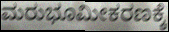
ಮರುಭೂಮೀಕರಣಕ್ಕೆ